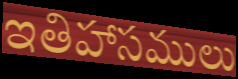
ఇతిహాసములు